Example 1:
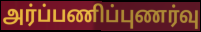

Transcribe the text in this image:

அர்ப்பணிப்புணர்வு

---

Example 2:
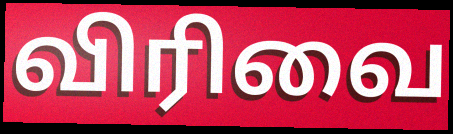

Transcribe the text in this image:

விரிவை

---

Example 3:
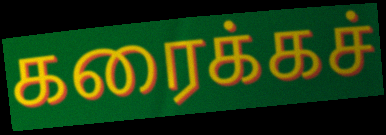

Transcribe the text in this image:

கரைக்கச்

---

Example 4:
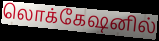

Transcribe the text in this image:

லொக்கேஷனில்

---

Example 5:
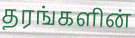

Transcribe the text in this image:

தரங்களின்